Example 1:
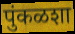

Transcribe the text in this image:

पुंकळशा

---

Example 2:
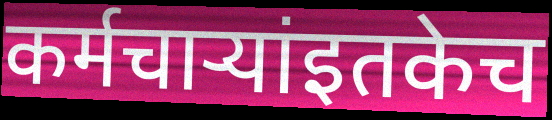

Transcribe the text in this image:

कर्मचाऱ्यांइतकेच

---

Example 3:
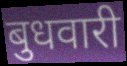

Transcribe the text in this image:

बुधवारी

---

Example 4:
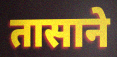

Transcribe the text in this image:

तासाने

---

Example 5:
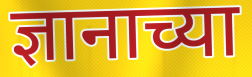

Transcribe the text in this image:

ज्ञानाच्या